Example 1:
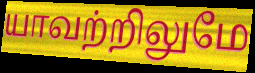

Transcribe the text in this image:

யாவற்றிலுமே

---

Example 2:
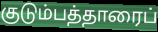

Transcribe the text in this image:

குடும்பத்தாரைப்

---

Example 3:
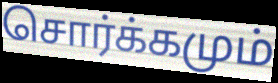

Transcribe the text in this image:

சொர்க்கமும்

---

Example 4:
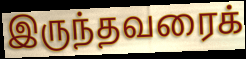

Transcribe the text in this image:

இருந்தவரைக்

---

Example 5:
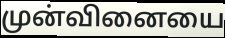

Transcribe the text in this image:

முன்வினையை